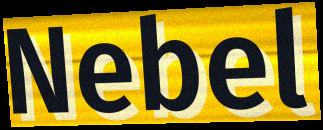
Nebel